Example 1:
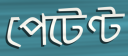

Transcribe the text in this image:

পেটেণ্ট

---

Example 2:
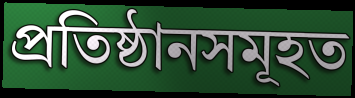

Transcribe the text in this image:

প্ৰতিষ্ঠানসমূহত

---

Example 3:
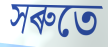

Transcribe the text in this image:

সৰুতে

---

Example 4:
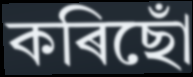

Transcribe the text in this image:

কৰিছোঁ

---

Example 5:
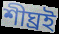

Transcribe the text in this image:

শীঘ্ৰই